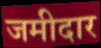
जमीदार